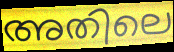
അതിലെ